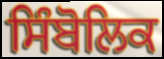
ਸਿੰਬੋਲਿਕ